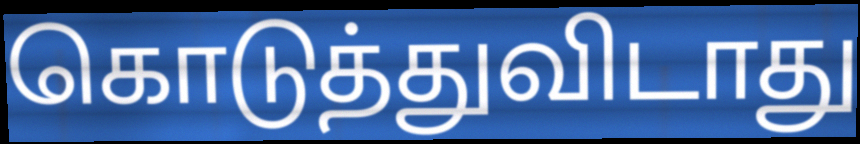
கொடுத்துவிடாது